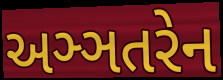
અઞ્ઞતરેન